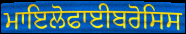
ਮਾਇਲੋਫਾਈਬਰੋਸਿਸ